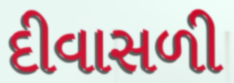
દીવાસળી